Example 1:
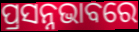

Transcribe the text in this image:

ପ୍ରସନ୍ନଭାବରେ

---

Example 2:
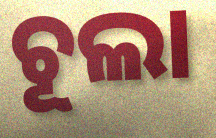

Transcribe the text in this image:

ଚୂଲା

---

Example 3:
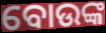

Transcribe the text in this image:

ବୋଉଙ୍କ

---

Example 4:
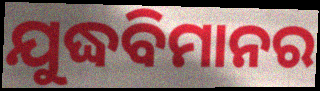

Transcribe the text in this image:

ଯୁଦ୍ଧବିମାନର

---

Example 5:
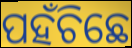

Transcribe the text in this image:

ପହଁଚିଛେ